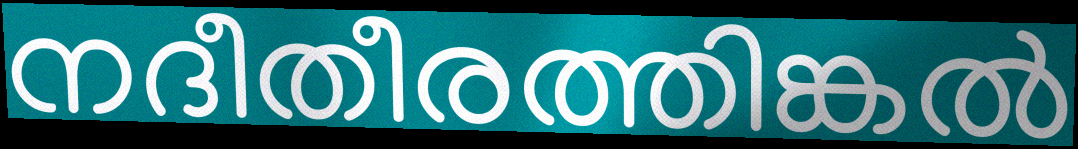
നദീതീരത്തിങ്കൽ